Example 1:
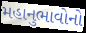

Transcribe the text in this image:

મહાનુભાવોનો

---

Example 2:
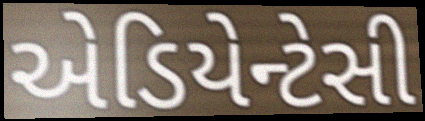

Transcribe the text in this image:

એડિયેન્ટેસી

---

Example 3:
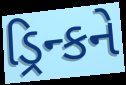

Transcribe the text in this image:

ડ્રિન્કને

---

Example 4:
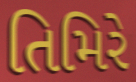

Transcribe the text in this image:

તિમિરે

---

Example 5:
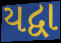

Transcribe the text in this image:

યદ્વા